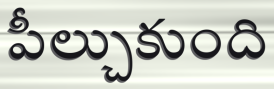
పీల్చుకుంది